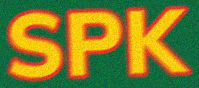
SPK